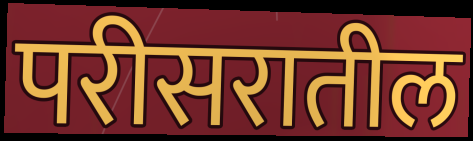
परीसरातील